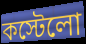
কস্টেলো